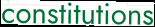
constitutions